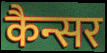
कैन्सर